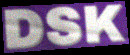
DSK